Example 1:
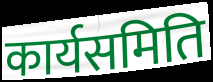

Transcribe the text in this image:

कार्यसमिति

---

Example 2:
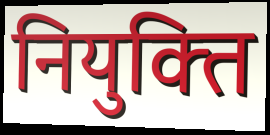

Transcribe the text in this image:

नियुक्‍ति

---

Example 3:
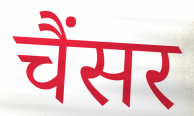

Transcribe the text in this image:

चैंसर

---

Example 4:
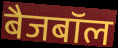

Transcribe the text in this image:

बैजबॉल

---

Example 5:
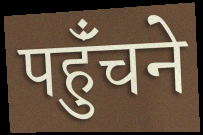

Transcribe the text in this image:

पहुंँचने